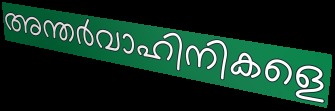
അന്തർവാഹിനികളെ